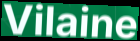
Vilaine